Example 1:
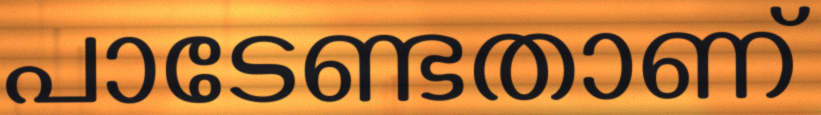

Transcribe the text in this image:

പാടേണ്ടതാണ്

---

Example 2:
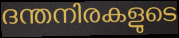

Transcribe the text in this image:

ദന്തനിരകളുടെ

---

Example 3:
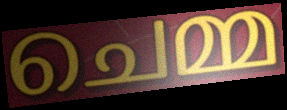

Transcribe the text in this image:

ചെമ്മ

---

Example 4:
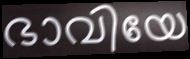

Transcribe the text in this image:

ഭാവിയേ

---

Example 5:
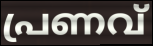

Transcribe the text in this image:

പ്രണവ്